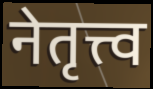
नेतृत्त्व